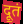
दू॒तं